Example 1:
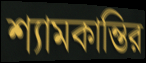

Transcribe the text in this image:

শ্যামকান্তির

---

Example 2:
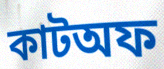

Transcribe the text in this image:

কাটঅফ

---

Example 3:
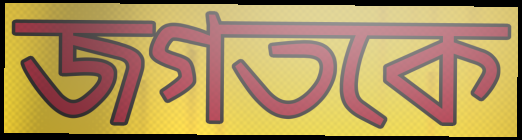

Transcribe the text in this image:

জগতকে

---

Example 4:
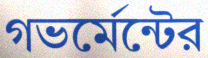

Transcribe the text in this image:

গভর্মেন্টের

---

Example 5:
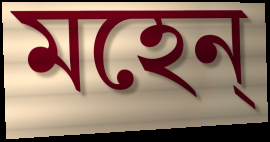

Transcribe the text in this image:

মহেন্